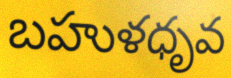
బహుళధృవ